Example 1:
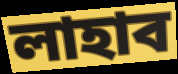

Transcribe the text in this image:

লাহাব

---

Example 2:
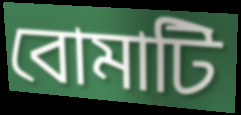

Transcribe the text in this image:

বোমাটি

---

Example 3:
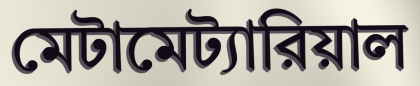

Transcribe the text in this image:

মেটামেট্যারিয়াল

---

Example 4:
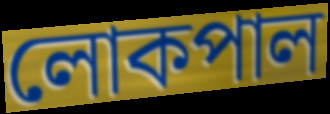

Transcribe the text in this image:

লোকপাল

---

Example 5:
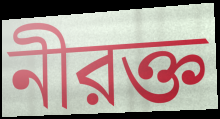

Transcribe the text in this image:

নীরক্ত